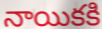
నాయికకి